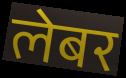
लेबर